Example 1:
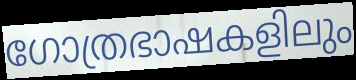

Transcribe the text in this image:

ഗോത്രഭാഷകളിലും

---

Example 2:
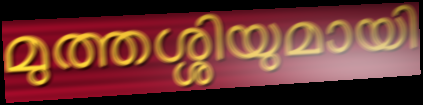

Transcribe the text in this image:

മുത്തശ്ശിയുമായി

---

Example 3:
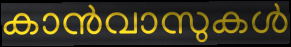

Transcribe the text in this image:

കാൻവാസുകൾ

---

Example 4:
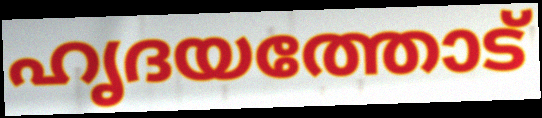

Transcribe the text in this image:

ഹൃദയത്തോട്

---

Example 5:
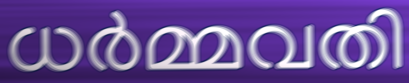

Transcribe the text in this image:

ധർമ്മവതി